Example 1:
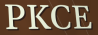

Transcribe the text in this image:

PKCE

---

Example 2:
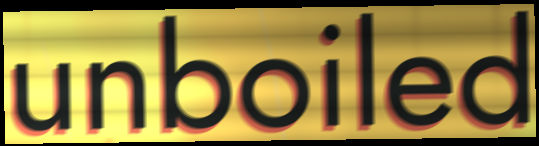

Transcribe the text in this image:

unboiled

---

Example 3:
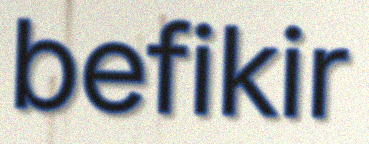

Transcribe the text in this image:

befikir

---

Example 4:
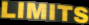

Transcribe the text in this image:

LIMITS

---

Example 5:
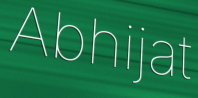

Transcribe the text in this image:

Abhijat